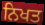
ਨਿਖਤ